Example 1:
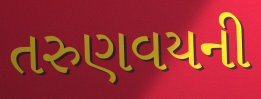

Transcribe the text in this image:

તરુણવયની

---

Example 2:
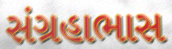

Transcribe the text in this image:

સંગ્રહાભાસ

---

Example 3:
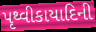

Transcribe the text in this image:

પૃથ્વીકાયાદિની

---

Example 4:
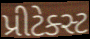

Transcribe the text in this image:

પ્રીટેક્સ્ટ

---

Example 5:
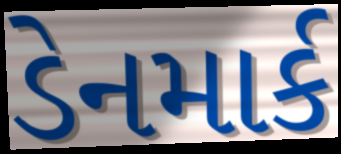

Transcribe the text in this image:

ડેનમાર્ક